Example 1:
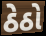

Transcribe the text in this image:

ઠેઠો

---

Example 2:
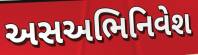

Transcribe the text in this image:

અસઅભિનિવેશ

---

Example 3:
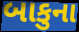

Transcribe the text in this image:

બાકુના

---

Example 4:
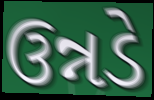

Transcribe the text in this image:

ઉન્નડે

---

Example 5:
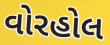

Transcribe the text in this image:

વોરહોલ